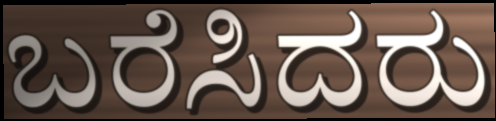
ಬರೆಸಿದರು